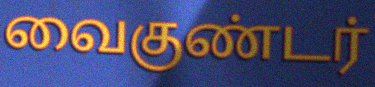
வைகுண்டர்